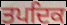
ਤਪਦਿਕ